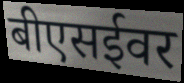
बीएसईवर